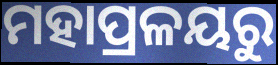
ମହାପ୍ରଳୟରୁ